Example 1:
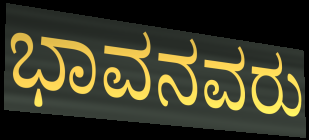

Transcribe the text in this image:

ಭಾವನವರು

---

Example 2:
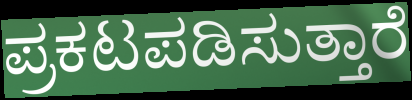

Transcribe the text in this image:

ಪ್ರಕಟಪಡಿಸುತ್ತಾರೆ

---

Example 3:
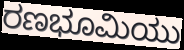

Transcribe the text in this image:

ರಣಭೂಮಿಯು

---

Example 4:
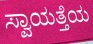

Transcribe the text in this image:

ಸ್ವಾಯತ್ತೆಯ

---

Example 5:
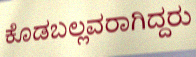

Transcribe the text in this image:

ಕೊಡಬಲ್ಲವರಾಗಿದ್ದರು